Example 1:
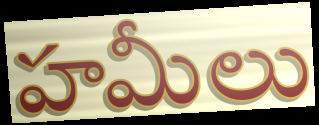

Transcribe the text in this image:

హమీలు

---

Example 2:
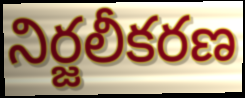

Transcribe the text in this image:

నిర్జలీకరణ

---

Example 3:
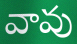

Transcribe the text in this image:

వావు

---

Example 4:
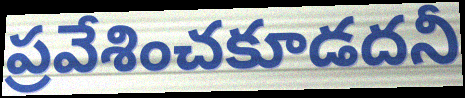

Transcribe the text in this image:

ప్రవేశించకూడదనీ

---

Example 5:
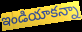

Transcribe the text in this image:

ఇండియాకన్నా